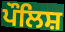
ਪੌਲਿਸ਼